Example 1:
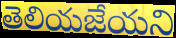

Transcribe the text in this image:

తెలియజేయని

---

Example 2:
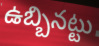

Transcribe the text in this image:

ఉబ్బినట్టు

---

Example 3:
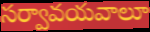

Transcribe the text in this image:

సర్వావయవాలూ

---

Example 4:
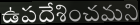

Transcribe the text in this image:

ఉపదేశించమని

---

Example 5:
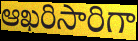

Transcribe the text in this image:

ఆఖరిసారిగా